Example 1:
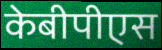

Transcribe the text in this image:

केबीपीएस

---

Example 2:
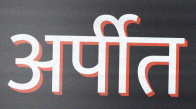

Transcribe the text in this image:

अर्पीत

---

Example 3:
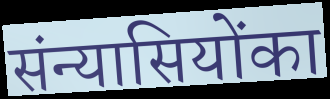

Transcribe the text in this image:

संन्यासियोंका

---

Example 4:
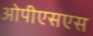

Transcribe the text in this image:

ओपीएसएस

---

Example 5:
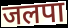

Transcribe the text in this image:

जलपा